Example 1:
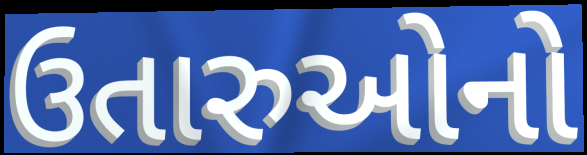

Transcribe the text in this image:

ઉતારુઓનો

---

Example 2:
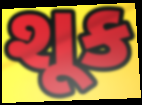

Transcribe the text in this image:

શૂક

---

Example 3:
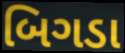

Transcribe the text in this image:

બિગડા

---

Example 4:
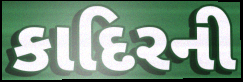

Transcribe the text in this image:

કાદિરની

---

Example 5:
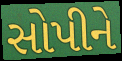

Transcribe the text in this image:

સોપીને